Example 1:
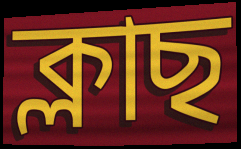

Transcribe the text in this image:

ক্লাছ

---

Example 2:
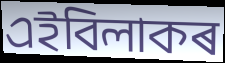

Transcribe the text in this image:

এইবিলাকৰ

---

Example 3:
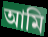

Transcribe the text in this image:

আমি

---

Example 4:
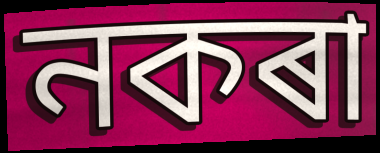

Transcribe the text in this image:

নকৰা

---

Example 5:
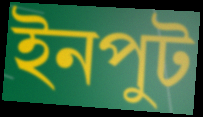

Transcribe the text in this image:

ইনপুট